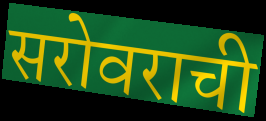
सरोवराची